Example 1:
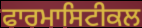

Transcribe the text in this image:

ਫਾਰਮਾਸਿਟੀਕਲ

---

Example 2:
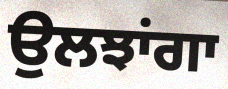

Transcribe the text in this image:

ਉਲਝਾਂਗਾ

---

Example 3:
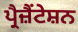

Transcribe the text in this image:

ਪ੍ਰੈਜ਼ੈਂਟੇਸ਼ਨ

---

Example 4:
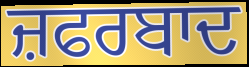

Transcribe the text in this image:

ਜ਼ਫਰਬਾਦ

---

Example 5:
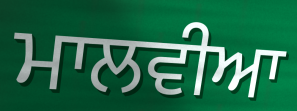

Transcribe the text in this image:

ਮਾਲਵੀਆ